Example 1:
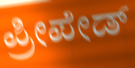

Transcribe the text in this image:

ಪ್ರೀಪೇಡ್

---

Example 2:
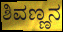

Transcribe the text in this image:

ಶಿವಣ್ಣನ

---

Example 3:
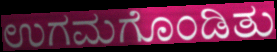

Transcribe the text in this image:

ಉಗಮಗೊಂಡಿತು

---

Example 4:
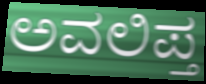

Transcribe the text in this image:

ಅವಲಿಪ್ತ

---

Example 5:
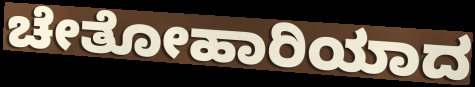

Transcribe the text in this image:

ಚೇತೋಹಾರಿಯಾದ